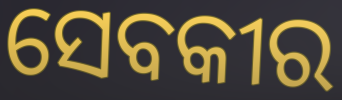
ସେବକୀର